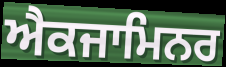
ਐਕਜਾਮਿਨਰ